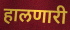
हालणारी